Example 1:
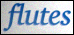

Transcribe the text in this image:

flutes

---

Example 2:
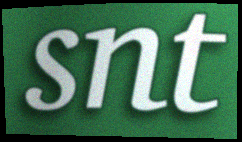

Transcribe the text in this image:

snt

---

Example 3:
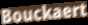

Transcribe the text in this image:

Bouckaert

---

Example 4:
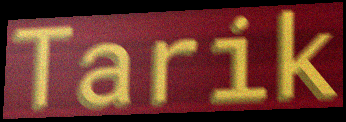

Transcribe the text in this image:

Tarik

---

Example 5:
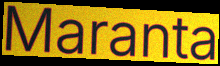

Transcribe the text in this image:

Maranta